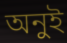
অনুই